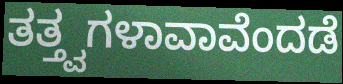
ತತ್ತ್ವಗಳಾವಾವೆಂದಡೆ